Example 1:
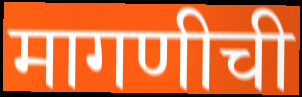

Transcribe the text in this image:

मागणीची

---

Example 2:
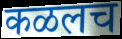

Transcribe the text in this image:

कळलच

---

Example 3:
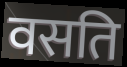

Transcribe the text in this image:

वसति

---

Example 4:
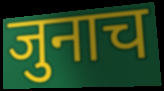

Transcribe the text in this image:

जुनाच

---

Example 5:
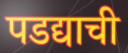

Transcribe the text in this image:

पडद्याची